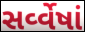
સર્વ્વેષાં